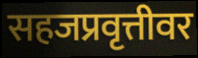
सहजप्रवृत्तीवर